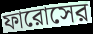
ফারোসের